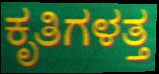
ಕೃತಿಗಳತ್ತ